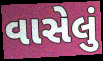
વાસેલું